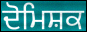
ਦੋਮਿਸ਼ਕ